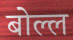
बोल्ल